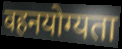
वहनयोग्यता